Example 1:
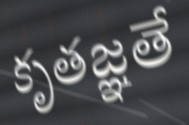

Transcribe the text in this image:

కృతజ్ఞతే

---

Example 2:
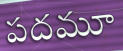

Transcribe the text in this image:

పదమూ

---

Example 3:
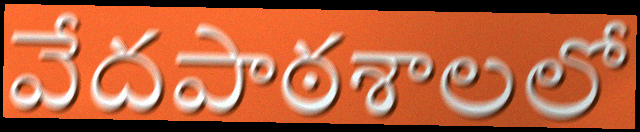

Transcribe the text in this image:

వేదపాఠశాలలో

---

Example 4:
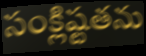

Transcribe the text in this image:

సంక్లిష్టతను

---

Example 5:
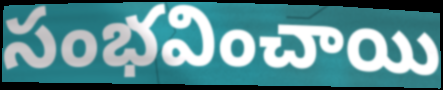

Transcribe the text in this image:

సంభవించాయి